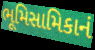
ભૂમિસામિકાનં